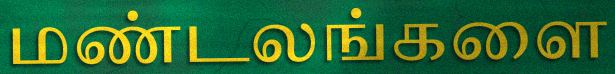
மண்டலங்களை